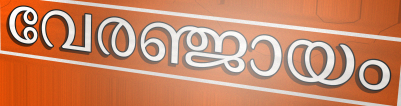
വേരഞ്ജായം